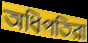
অধিপতিরা